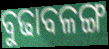
ବୁଢାବଳଙ୍ଗ